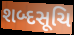
શબ્દસૂચિ